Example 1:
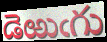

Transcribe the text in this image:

డెఱుఁగు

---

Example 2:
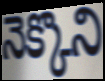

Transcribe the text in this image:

నెక్కొని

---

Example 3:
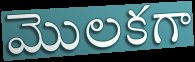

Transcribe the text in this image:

మొలకగా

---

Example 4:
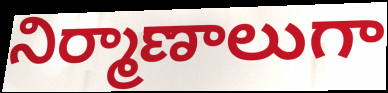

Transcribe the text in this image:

నిర్మాణాలుగా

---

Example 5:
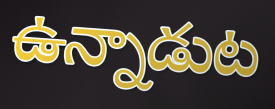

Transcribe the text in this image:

ఉన్నాడుట